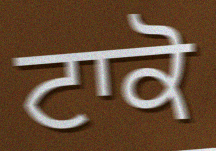
ਟਾਕੋ